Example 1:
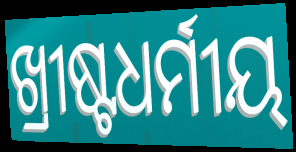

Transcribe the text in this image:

ଖ୍ରୀଷ୍ଟଧର୍ମୀୟ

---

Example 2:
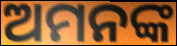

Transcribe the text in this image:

ଅମନଙ୍କ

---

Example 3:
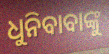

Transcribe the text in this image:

ଧୁନିବାବାଙ୍କୁ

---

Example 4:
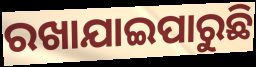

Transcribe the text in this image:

ରଖାଯାଇପାରୁଛି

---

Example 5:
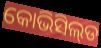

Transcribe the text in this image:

କୋଭିସିଲ୍‌ଡ